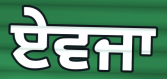
ਏਵਜਾ